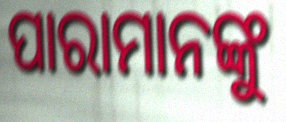
ପାରାମାନଙ୍କୁ